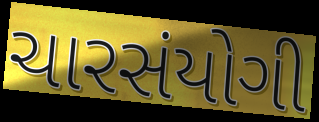
ચારસંયોગી